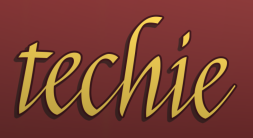
techie